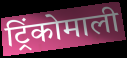
ट्रिंकोमाली